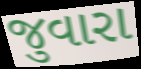
જુવારા